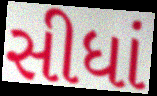
સીધાં